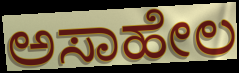
ಅಸಾಹೇಲ